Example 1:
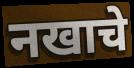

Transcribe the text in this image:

नखाचे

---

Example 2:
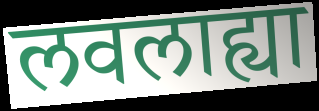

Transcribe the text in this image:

लवलाह्या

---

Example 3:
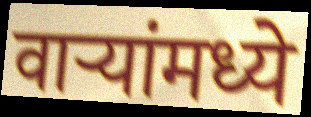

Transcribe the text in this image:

वाऱ्यांमध्ये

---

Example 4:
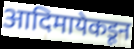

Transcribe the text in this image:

आदिमायेकडून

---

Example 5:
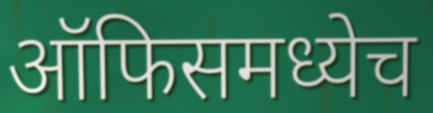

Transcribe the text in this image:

ऑफिसमध्येच